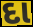
દા